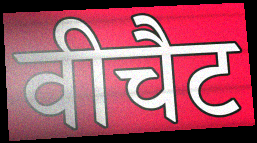
वीचैट